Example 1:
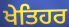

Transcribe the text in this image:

ਖੇਤਿਹਰ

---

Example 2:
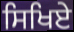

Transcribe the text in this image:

ਸਿਖਿਏ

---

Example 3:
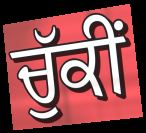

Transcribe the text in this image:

ਚੁੱਕੀਂ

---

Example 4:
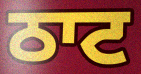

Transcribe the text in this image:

ਠਾਟ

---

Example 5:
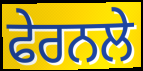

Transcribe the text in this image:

ਫੇਰਨਲੇ